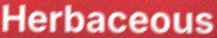
Herbaceous